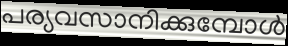
പര്യവസാനിക്കുമ്പോൾ